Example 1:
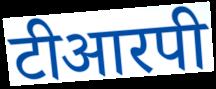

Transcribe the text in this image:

टीआरपी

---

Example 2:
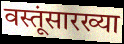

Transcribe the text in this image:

वस्तूंसारख्या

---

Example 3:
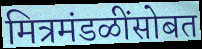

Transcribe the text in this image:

मित्रमंडळींसोबत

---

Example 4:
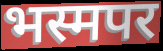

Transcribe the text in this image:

भस्मपर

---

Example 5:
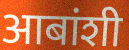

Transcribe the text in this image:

आबांशी